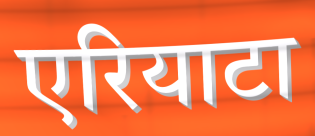
एरियाटा